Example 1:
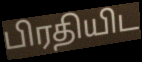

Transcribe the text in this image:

பிரதியிட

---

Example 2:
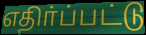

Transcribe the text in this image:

எதிர்ப்பட்டு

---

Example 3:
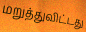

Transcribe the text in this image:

மறுத்துவிட்டது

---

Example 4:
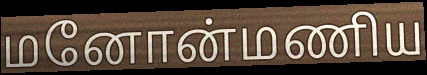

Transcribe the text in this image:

மனோன்மணிய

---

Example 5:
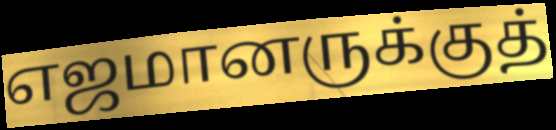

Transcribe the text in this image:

எஜமானருக்குத்